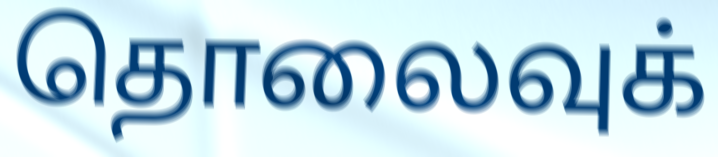
தொலைவுக்